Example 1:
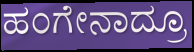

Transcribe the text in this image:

ಹಂಗೇನಾದ್ರೂ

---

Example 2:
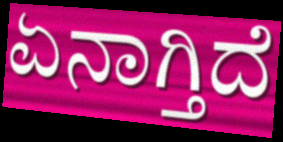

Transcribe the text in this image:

ಏನಾಗ್ತಿದೆ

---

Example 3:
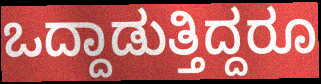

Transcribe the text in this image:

ಒದ್ದಾಡುತ್ತಿದ್ದರೂ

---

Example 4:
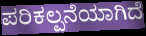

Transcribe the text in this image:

ಪರಿಕಲ್ಪನೆಯಾಗಿದೆ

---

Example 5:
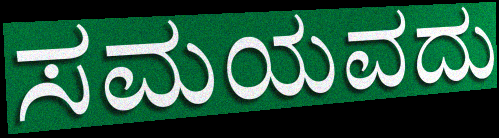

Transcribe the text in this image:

ಸಮಯವದು